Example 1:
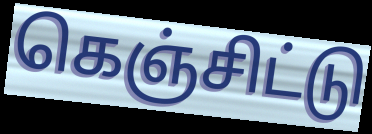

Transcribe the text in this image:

கெஞ்சிட்டு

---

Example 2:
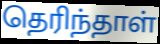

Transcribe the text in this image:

தெரிந்தாள்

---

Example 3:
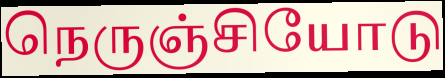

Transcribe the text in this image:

நெருஞ்சியோடு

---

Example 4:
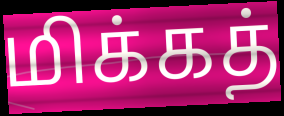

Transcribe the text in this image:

மிக்கத்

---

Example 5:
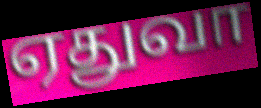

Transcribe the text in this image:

ஏதுவா